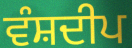
ਵੰਸ਼ਦੀਪ